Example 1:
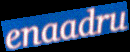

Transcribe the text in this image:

enaadru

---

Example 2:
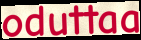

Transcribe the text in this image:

oduttaa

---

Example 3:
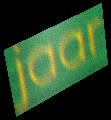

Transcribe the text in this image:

jaar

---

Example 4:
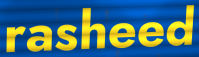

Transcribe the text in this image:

rasheed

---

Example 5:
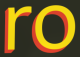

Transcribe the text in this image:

ro